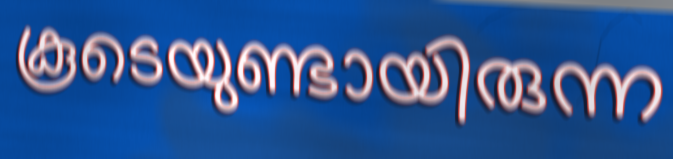
കൂടെയുണ്ടായിരുന്ന